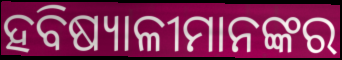
ହବିଷ୍ୟାଳୀମାନଙ୍କର